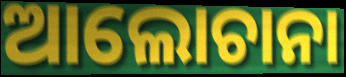
ଆଲୋଚାନା